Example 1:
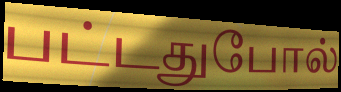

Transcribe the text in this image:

பட்டதுபோல்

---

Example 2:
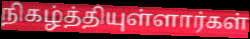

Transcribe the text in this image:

நிகழ்த்தியுள்ளார்கள்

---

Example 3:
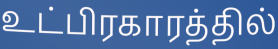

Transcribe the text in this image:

உட்பிரகாரத்தில்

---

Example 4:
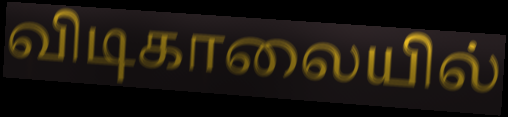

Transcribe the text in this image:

விடிகாலையில்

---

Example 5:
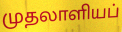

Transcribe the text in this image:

முதலாளியப்